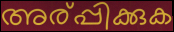
അര്പ്പിക്കുക